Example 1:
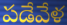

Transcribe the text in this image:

పడేవేళ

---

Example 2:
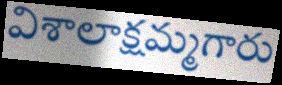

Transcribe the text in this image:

విశాలాక్షమ్మగారు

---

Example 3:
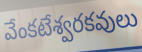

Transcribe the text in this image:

వేంకటేశ్వరకవులు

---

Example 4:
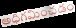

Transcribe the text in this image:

అధిగమించడం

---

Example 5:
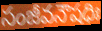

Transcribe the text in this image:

సంజీవనౌషధిః